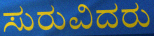
ಸುರುವಿದರು